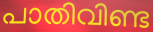
പാതിവിണ്ട